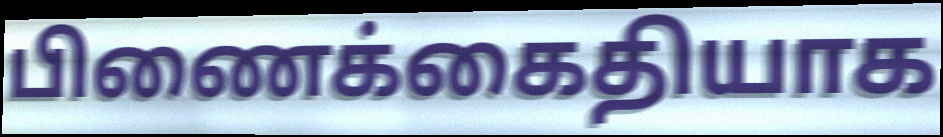
பிணைக்கைதியாக